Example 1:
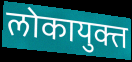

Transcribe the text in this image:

लोकायुक्त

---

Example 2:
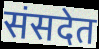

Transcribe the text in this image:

संसदेत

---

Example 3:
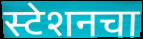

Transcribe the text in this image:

स्टेशनचा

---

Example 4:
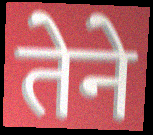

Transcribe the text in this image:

तेने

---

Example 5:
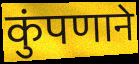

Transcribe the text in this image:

कुंपणाने